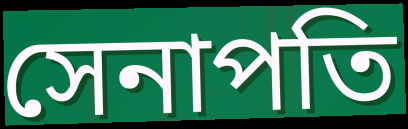
সেনাপতি